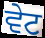
ਵੇਟ